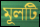
মূলটি